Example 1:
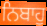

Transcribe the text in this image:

ਨਿਬਾਹੁ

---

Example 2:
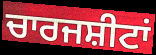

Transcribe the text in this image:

ਚਾਰਜਸ਼ੀਟਾਂ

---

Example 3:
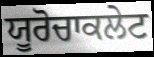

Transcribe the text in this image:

ਯੂਰੋਚਾਕਲੇਟ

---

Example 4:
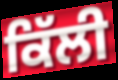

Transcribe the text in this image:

ਕਿੱਲੀ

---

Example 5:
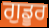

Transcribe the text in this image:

ਗੁਡੂਰ